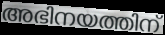
അഭിനയത്തിന്